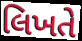
લિખતે